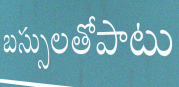
బస్సులతోపాటు